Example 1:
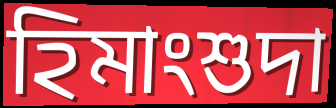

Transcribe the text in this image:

হিমাংশুদা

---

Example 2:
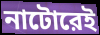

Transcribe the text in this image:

নাটোরেই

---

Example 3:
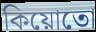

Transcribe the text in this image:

কিয়োতো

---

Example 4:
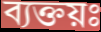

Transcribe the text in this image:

ব্যক্তয়ঃ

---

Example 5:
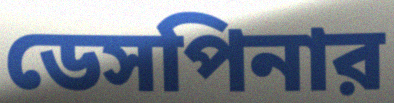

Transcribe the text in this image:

ডেসপিনার